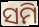
ସମି